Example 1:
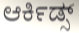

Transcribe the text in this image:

ಆರ್ಕಿಡ್ಸ್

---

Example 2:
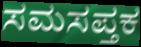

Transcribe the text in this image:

ಸಮಸಪ್ತಕ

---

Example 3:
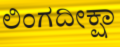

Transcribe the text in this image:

ಲಿಂಗದೀಕ್ಷಾ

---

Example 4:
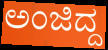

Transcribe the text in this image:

ಅಂಜಿದ್ದ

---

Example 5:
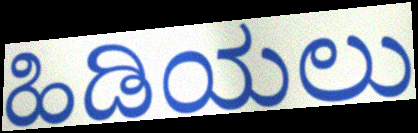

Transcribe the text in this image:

ಹಿಡಿಯಲು